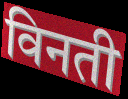
विनती